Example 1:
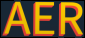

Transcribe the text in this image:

AER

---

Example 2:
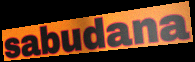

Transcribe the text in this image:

sabudana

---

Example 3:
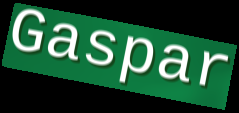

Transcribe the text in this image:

Gaspar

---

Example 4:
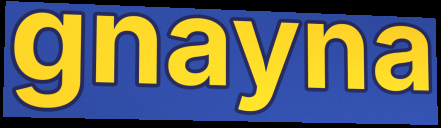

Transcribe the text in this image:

gnayna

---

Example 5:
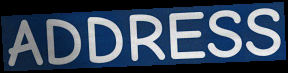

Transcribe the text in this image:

ADDRESS